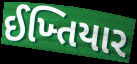
ઈખ્તિયાર